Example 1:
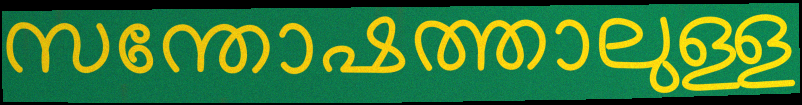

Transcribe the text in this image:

സന്തോഷത്താലുള്ള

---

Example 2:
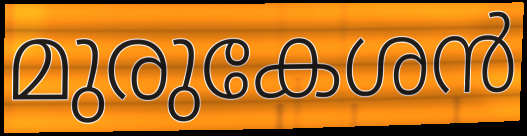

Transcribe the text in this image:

മുരുകേശൻ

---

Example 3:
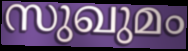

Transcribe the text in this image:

സുഖുമം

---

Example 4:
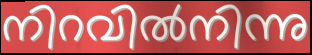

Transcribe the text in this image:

നിറവിൽനിന്നു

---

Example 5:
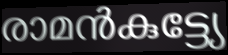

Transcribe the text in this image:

രാമൻകുട്ട്യേ